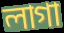
লাগা